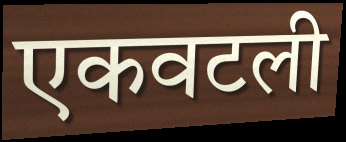
एकवटली